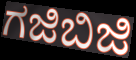
ಗಜಿಬಿಜಿ